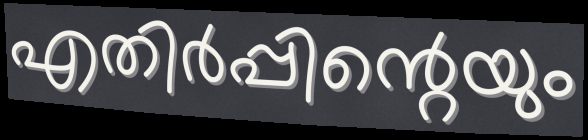
എതിർപ്പിന്റെയും